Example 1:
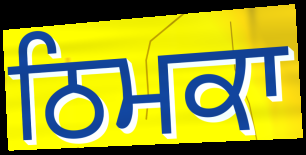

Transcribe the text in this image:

ਠਿਮਕਾ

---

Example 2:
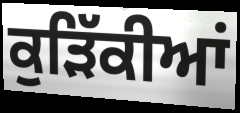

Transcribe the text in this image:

ਕੁੜਿੱਕੀਆਂ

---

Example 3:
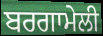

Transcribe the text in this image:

ਬਰਗਾਮੇਲੀ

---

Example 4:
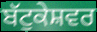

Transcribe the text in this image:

ਬੱਟੁਕੇਸ਼ਵਰ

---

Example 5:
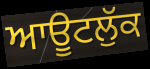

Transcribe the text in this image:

ਆਊਟਲੁੱਕ